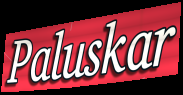
Paluskar